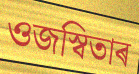
ওজস্বিতাৰ